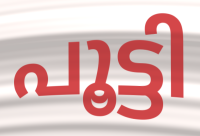
പൂട്ടി